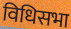
विधिसभा